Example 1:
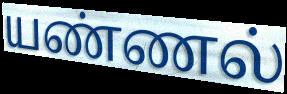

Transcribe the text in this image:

யண்ணல்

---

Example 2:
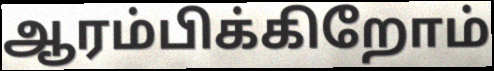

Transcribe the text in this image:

ஆரம்பிக்கிறோம்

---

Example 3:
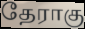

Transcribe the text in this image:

தேராகு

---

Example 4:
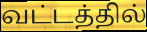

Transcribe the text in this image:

வட்டத்தில்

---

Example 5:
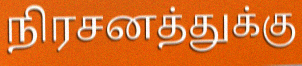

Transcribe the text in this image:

நிரசனத்துக்கு